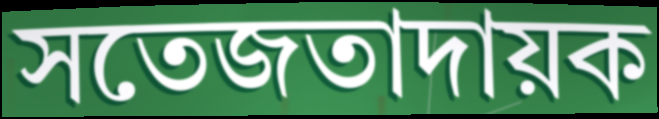
সতেজতাদায়ক